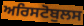
ਅਰਿਸਟੋਬੁਲਸ